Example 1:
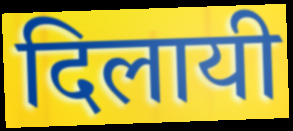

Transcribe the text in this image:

दिलायी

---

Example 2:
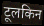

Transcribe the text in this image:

टूलकिन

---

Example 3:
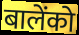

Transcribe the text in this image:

बालेंको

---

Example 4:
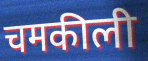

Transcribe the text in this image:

चमकीली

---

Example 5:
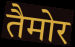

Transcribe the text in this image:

तैमोर